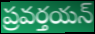
ప్రవర్తయన్